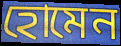
হোমেন